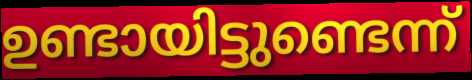
ഉണ്ടായിട്ടുണ്ടെന്ന്